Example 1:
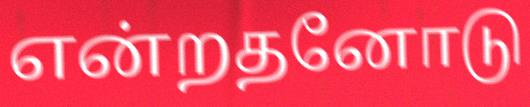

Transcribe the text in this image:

என்றதனோடு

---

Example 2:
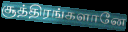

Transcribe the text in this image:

சூத்திரங்களானே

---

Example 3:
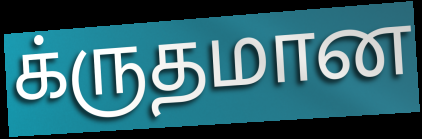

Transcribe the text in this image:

க்ருதமான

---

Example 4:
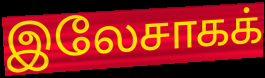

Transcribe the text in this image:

இலேசாகக்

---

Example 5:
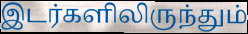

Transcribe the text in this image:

இடர்களிலிருந்தும்